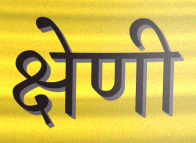
क्षेणी